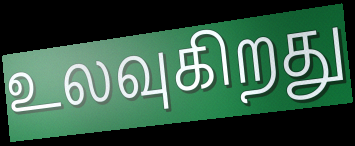
உலவுகிறது